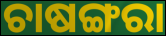
ଚାଷଙ୍ଗରା